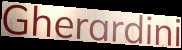
Gherardini